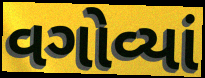
વગોવ્યાં